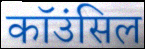
कॉउंसिल